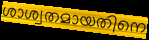
ശാശ്വതമായതിനെ